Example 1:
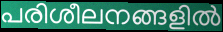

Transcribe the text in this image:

പരിശീലനങ്ങളിൽ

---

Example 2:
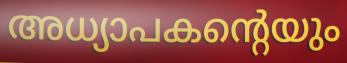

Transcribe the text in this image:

അധ്യാപകന്റെയും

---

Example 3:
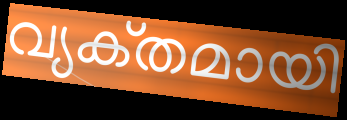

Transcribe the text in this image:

വ്യക്‌തമായി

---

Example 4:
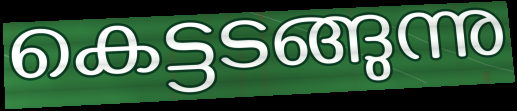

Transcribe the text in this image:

കെട്ടടങ്ങുന്നു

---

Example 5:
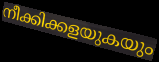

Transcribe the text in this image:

നീക്കിക്കളയുകയും